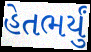
હેતભર્યું